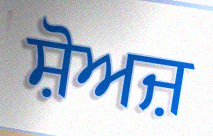
ਸ਼ੋਅਜ਼